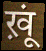
ख़ूं